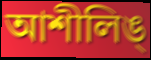
আশীলিঙ্